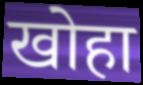
खोहा